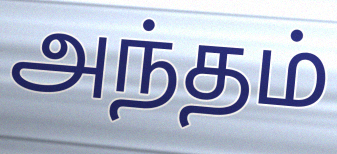
அந்தம்